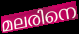
മലരിനെ